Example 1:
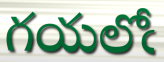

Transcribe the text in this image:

గయలోఁ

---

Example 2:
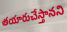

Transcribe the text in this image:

తయారుచేస్తానని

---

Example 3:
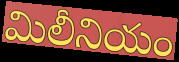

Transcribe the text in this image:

మిలీనియం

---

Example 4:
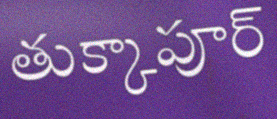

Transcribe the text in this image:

తుక్కాపూర్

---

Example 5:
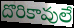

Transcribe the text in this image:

దొరికావులే